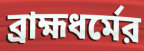
ব্রাহ্মধর্মের